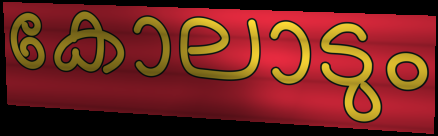
കോലാടും